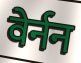
वेर्नन